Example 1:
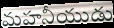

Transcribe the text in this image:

మహనీయుడు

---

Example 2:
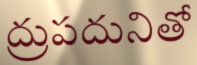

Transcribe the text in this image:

ద్రుపదునితో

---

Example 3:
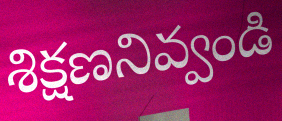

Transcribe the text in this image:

శిక్షణనివ్వండి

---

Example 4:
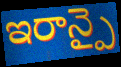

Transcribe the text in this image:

ఇరాన్పై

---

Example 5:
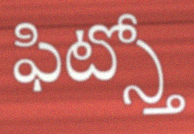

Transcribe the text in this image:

ఫిట్స్తో